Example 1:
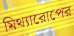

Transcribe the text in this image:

মিথ্যারোপের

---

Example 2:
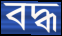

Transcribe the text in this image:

বদ্ধ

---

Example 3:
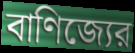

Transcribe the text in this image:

বাণিজ্যের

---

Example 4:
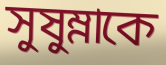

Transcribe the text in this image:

সুষুম্নাকে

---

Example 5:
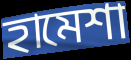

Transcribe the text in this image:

হামেশা